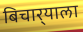
बिचार्‍याला